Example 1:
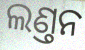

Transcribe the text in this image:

ଲଣ୍ତନ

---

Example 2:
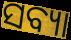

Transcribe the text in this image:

ସବ୍ୟା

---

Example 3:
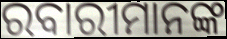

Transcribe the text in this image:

ରବାରୀମାନଙ୍କ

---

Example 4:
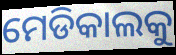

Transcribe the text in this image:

ମେଡିକାଲକୁ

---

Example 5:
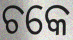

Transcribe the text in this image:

ଚକେ